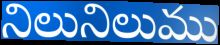
నిలునిలుము